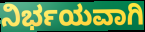
ನಿರ್ಭಯವಾಗಿ